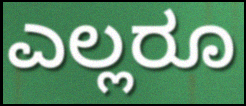
ಎಲ್ಲರೂ